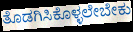
ತೊಡಗಿಸಿಕೊಳ್ಳಲೇಬೇಕು